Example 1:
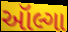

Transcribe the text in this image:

ઑલ્ગા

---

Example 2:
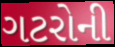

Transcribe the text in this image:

ગટરોની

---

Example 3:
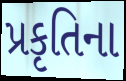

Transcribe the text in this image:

પ્રકૃતિના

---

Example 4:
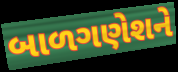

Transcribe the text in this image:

બાળગણેશને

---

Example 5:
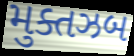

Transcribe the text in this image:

મુક્તઝબ